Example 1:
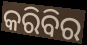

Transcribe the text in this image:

କରିବିର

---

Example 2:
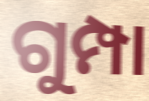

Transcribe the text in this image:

ଗୁମ୍ପା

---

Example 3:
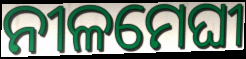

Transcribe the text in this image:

ନୀଳମେଘୀ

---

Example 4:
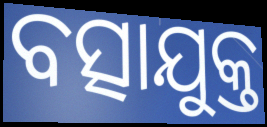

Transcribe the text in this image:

ବତ୍ସାଯୁକ୍ତ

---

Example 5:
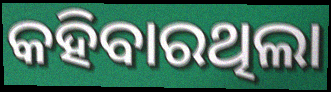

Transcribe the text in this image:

କହିବାରଥିଲା